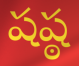
షష్ఠ